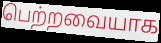
பெற்றவையாக